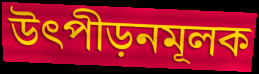
উৎপীড়নমূলক